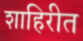
शाहिरीत